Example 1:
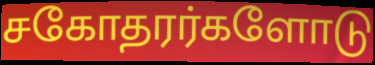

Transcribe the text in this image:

சகோதரர்களோடு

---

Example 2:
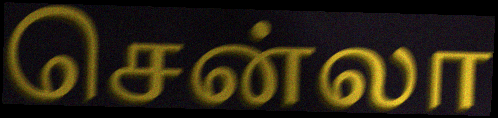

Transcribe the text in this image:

சென்லா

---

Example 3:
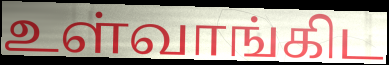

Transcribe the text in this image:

உள்வாங்கிட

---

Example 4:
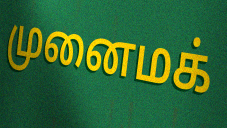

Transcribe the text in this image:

முனைமக்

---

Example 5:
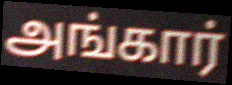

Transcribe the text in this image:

அங்கார்